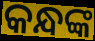
କନ୍ଧଙ୍କ